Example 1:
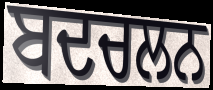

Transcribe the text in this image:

ਬਦਚਲਨ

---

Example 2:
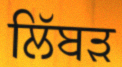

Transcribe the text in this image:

ਲਿੱਬੜ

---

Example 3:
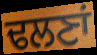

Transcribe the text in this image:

ਢਲਣਾਂ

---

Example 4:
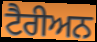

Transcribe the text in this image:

ਟੈਰੀਅਨ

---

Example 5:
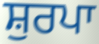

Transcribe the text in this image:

ਸ਼ੁਰਪਾ